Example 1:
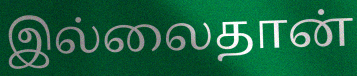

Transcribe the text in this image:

இல்லைதான்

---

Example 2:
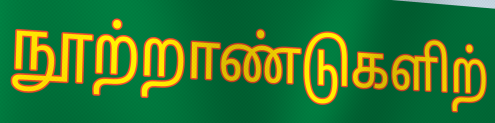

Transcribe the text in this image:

நூற்றாண்டுகளிற்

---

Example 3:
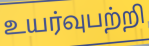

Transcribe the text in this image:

உயர்வுபற்றி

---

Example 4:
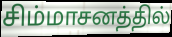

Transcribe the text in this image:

சிம்மாசனத்தில்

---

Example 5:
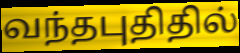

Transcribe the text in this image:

வந்தபுதிதில்